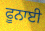
ਫੂਨਾਈ